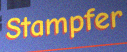
Stampfer